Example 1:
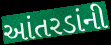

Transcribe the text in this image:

આંતરડાંની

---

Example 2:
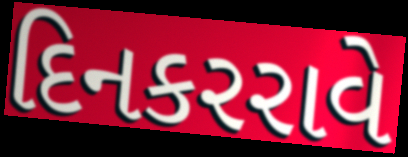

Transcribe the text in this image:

દિનકરરાવે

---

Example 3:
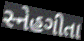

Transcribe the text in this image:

સ્નેહગીતા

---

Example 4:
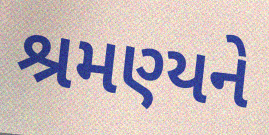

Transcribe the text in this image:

શ્રમણ્યને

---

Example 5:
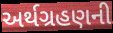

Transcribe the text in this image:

અર્થગ્રહણની